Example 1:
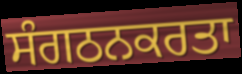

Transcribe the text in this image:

ਸੰਗਠਨਕਰਤਾ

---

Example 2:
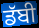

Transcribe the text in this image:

ਡੱਬੀ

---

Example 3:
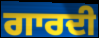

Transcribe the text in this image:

ਗਾਰਦੀ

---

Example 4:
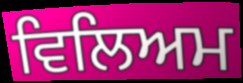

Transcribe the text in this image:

ਵਿਲਿਅਮ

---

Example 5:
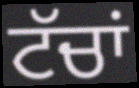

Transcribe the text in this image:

ਟੱਚਾਂ